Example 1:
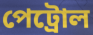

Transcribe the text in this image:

পেট্রোল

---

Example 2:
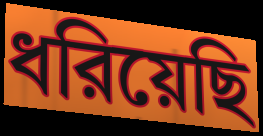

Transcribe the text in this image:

ধরিয়েছি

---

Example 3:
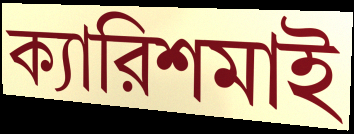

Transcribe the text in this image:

ক্যারিশমাই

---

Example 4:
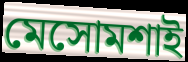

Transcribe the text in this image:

মেসোমশাই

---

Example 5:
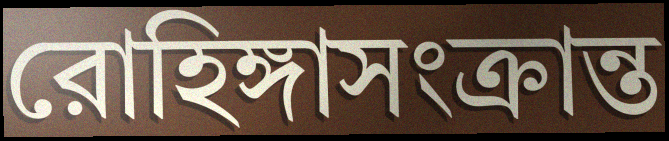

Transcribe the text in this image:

রোহিঙ্গাসংক্রান্ত